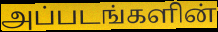
அப்படங்களின்